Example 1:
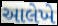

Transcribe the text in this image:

આલેખે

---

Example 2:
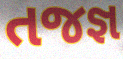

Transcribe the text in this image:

તજજ્ઞ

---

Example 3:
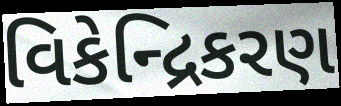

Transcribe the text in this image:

વિકેન્દ્રિકરણ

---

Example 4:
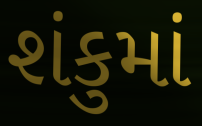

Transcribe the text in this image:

શંકુમાં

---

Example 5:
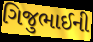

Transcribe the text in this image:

ગિજુભાઈની